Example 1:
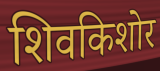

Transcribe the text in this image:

शिवकिशोर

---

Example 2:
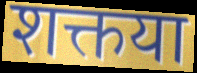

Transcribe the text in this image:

शक्तया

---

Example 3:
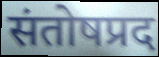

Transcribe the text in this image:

संतोषप्रद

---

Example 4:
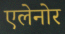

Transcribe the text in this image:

एलेनोर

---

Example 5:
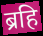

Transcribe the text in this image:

ब्रहि